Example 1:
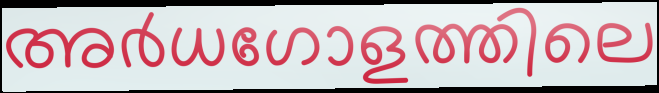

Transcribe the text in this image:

അർധഗോളത്തിലെ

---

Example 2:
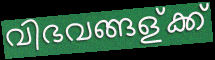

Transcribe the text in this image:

വിഭവങ്ങള്ക്ക്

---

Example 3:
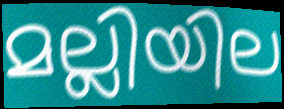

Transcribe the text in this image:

മല്ലിയില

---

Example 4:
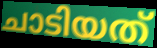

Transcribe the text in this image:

ചാടിയത്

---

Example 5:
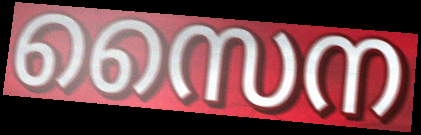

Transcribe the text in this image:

സൈന